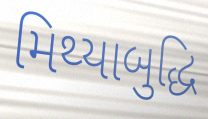
મિથ્યાબુદ્ધિ